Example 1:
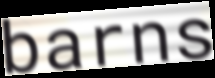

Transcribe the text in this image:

barns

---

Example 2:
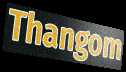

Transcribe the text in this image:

Thangom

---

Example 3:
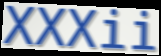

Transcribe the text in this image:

XXXii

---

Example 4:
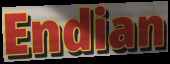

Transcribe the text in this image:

Endian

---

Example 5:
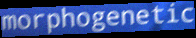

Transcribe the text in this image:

morphogenetic